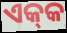
ଏକ୍‍କ